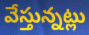
వేస్తున్నట్లు